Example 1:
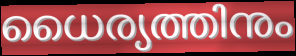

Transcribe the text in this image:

ധൈര്യത്തിനും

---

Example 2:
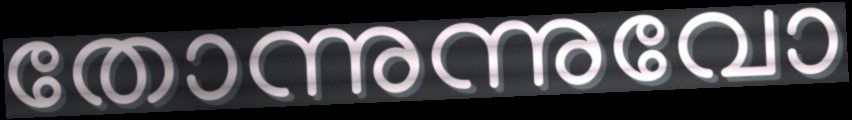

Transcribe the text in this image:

തോന്നുന്നുവോ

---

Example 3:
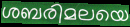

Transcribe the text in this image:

ശബരിമലയെ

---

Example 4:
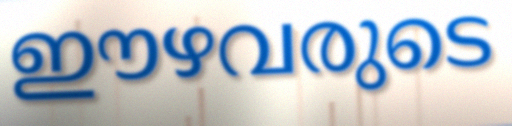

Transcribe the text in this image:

ഈഴവരുടെ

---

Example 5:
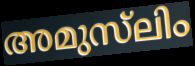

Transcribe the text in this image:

അമുസ്‌ലിം